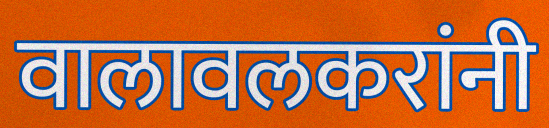
वालावलकरांनी